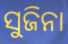
ସୁଜିନା